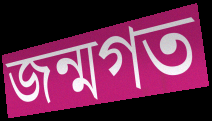
জন্মগত